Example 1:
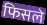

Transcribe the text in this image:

फिसले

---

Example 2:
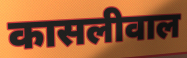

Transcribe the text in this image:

कासलीवाल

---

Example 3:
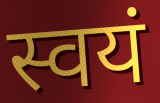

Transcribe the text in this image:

स्वयं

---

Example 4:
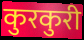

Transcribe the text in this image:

कुरकुरी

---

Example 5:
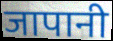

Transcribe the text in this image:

जापानी